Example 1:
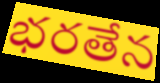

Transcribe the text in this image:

భరతేన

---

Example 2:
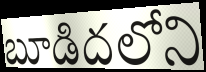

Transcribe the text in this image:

బూడిదలోని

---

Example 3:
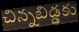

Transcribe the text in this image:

చిన్నబిడ్డకు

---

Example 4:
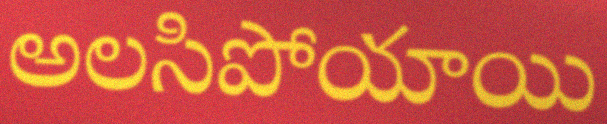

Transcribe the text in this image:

అలసిపోయాయి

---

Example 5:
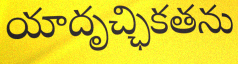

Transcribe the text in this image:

యాదృచ్ఛికతను